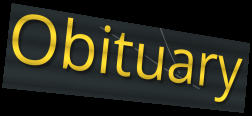
Obituary